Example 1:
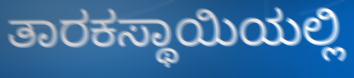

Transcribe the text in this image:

ತಾರಕಸ್ಥಾಯಿಯಲ್ಲಿ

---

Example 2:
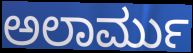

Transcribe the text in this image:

ಅಲಾರ್ಮು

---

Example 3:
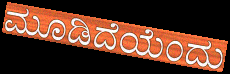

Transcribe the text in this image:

ಮೂಡಿದೆಯೆಂದು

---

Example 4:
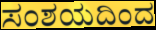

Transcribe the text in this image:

ಸಂಶಯದಿಂದ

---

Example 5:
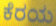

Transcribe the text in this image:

ಕೆರಯ